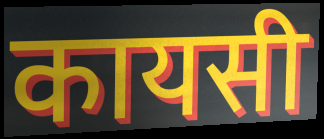
कायसी